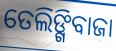
ତେଲିଙ୍ଗିବାଜା